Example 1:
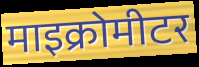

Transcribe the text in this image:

माइक्रोमीटर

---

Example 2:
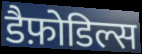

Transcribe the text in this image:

डैफ़ोडिल्स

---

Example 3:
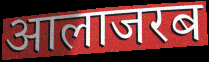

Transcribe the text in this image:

आलाजरब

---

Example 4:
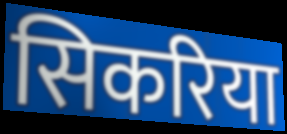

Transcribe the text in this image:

सिकरिया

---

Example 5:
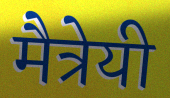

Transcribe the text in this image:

मैत्रेयी